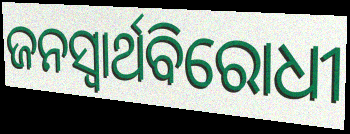
ଜନସ୍ଵାର୍ଥବିରୋଧୀ